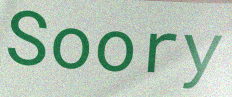
Soory